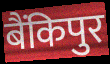
बैंकिपुर